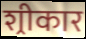
श्रीकार